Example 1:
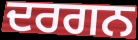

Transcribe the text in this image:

ਦਰਗਨ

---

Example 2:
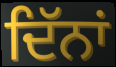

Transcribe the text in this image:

ਦਿੱਨਾਂ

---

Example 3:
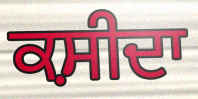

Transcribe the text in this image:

ਕ਼ਸੀਦਾ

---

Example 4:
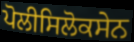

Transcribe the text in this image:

ਪੋਲੀਸਿਲੋਕਸੇਨ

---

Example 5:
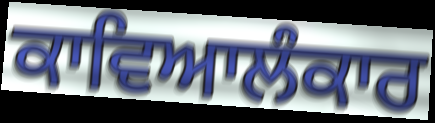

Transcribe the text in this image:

ਕਾਵਿਆਲੰਕਾਰ